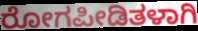
ರೋಗಪೀಡಿತಳಾಗಿ